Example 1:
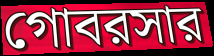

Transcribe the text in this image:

গোবরসার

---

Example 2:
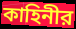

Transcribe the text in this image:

কাহিনীর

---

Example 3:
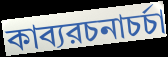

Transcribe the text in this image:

কাব্যরচনাচর্চা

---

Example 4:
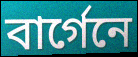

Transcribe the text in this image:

বার্গেনে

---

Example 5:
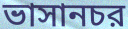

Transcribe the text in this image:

ভাসানচর